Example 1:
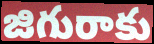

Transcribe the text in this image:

జిగురాకు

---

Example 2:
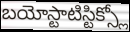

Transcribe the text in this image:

బయోస్టాటిస్టిక్స్లో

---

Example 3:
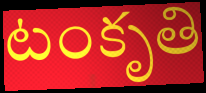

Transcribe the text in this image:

టంకృతి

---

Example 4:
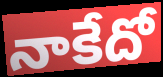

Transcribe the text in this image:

నాకేదో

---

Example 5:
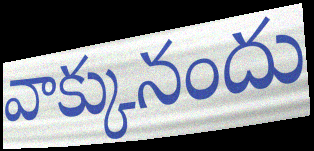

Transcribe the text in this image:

వాక్కునందు